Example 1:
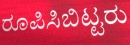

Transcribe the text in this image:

ರೂಪಿಸಿಬಿಟ್ಟರು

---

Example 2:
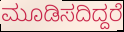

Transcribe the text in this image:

ಮೂಡಿಸದಿದ್ದರೆ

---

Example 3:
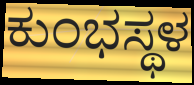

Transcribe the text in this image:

ಕುಂಭಸ್ಥಳ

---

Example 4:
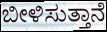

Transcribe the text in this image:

ಬೀಳಿಸುತ್ತಾನೆ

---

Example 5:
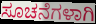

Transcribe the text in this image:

ಸೂಚನೆಗಳಾಗಿ